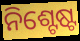
ନିଶ୍ଟେଷ୍ଟ